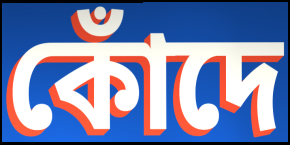
কোঁদে